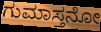
ಗುಮಾಸ್ತನೋ